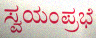
ಸ್ವಯಂಪ್ರಭೆ